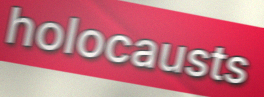
holocausts